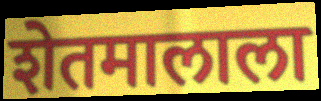
शेतमालाला